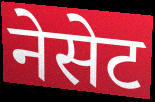
नेसेट